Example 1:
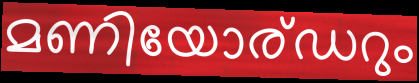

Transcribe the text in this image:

മണിയോര്ഡറും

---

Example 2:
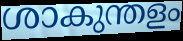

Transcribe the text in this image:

ശാകുന്തളം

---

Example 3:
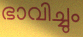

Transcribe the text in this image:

ഭാവിച്ചും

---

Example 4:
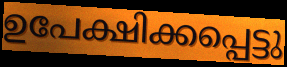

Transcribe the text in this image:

ഉപേക്ഷിക്കപ്പെട്ടു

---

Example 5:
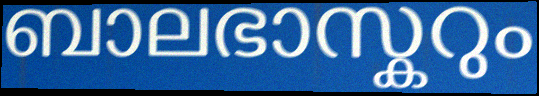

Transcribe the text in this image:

ബാലഭാസ്കറും